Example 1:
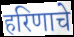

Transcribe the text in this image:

हरिणाचे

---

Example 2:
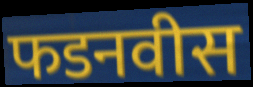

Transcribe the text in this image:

फडनवीस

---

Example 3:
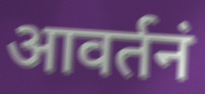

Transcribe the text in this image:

आवर्तनं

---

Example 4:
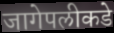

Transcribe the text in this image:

जागेपलीकडे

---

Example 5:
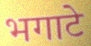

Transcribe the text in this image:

भगाटे